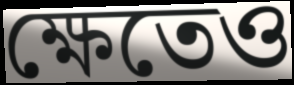
ক্ষেতেও